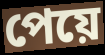
পেয়ে